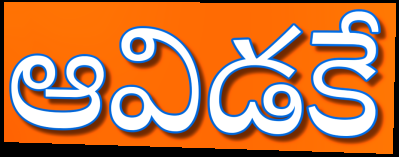
ఆవిడకే